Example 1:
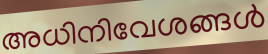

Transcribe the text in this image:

അധിനിവേശങ്ങൾ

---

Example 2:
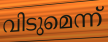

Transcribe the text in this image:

വിടുമെന്ന്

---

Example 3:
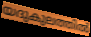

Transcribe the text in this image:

യദുകുലത്തിൽ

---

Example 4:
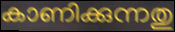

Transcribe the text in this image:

കാണിക്കുന്നതു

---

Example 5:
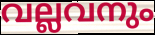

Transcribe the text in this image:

വല്ലവനും